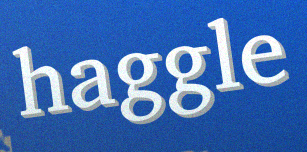
haggle